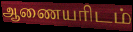
ஆணையரிடம்